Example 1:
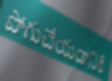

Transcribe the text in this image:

పోగుచేయడానికి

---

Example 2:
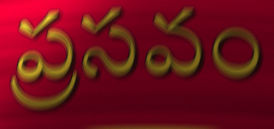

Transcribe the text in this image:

ప్రసవం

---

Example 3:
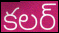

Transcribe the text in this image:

కలర్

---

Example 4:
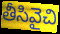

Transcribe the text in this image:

తీసివైచి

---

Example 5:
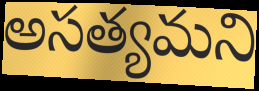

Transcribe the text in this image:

అసత్యమని